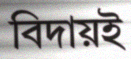
বিদায়ই